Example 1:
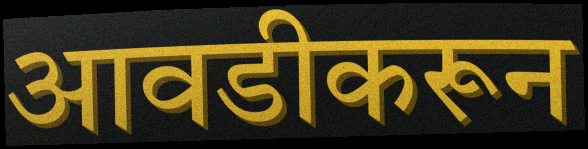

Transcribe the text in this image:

आवडीकरून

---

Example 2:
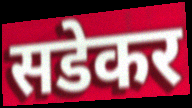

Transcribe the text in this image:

सडेकर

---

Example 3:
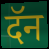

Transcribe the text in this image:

दॅन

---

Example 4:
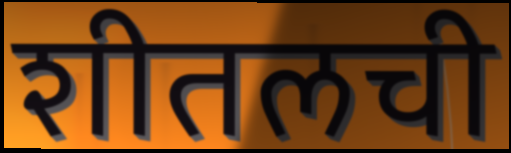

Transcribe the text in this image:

शीतलची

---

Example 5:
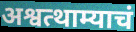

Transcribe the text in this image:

अश्वत्थाम्याचं